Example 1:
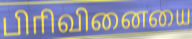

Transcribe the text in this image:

பிரிவினையை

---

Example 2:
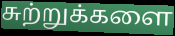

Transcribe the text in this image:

சுற்றுக்களை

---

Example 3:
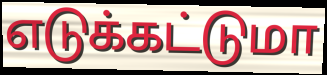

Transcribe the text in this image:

எடுக்கட்டுமா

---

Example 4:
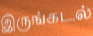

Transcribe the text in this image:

இருங்கடல்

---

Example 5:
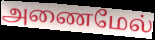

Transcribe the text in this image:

அணைமேல்